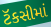
ટૅકસીમાં